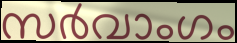
സർവാംഗം